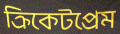
ক্রিকেটপ্রেম